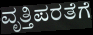
ವೃತ್ತಿಪರತೆಗೆ